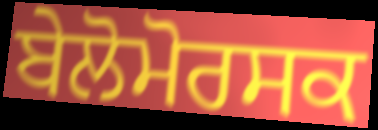
ਬੇਲੋਮੋਰਸਕ